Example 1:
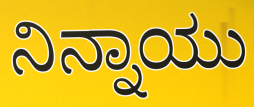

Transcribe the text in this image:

ನಿನ್ನಾಯು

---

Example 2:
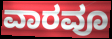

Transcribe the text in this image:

ವಾರವೂ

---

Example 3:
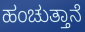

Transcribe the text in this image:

ಹಂಚುತ್ತಾನೆ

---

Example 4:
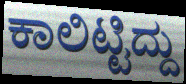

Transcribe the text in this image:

ಕಾಲಿಟ್ಟಿದ್ದು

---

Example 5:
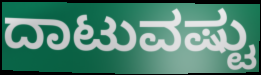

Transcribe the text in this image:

ದಾಟುವಷ್ಟು